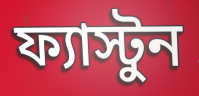
ফ্যাস্টুন